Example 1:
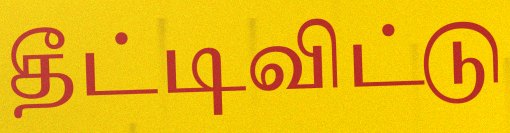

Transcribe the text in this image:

தீட்டிவிட்டு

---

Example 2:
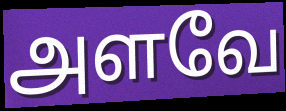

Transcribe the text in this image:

அளவே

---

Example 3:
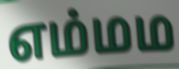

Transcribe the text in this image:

எம்மம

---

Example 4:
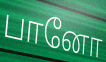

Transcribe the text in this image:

பானோ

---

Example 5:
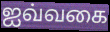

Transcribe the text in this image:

ஐவ்வகை